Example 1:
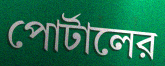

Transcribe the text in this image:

পোর্টালের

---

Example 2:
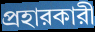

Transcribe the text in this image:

প্রহারকারী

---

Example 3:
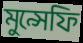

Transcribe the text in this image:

মুন্সেফি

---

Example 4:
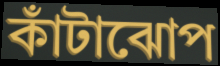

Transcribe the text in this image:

কাঁটাঝোপ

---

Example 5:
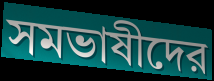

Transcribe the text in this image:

সমভাষীদের